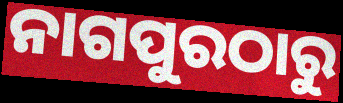
ନାଗପୁରଠାରୁ